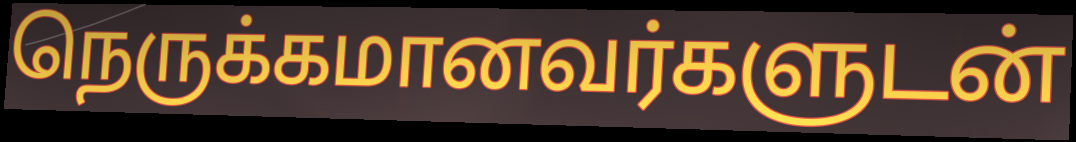
நெருக்கமானவர்களுடன்